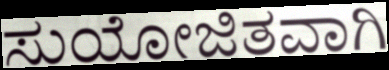
ಸುಯೋಜಿತವಾಗಿ